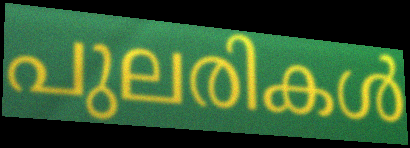
പുലരികൾ